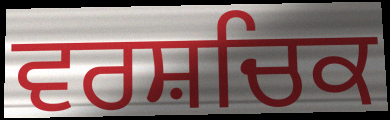
ਵਰਸ਼ਚਿਕ